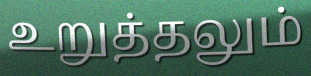
உறுத்தலும்